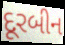
દૂરબીન